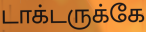
டாக்டருக்கே